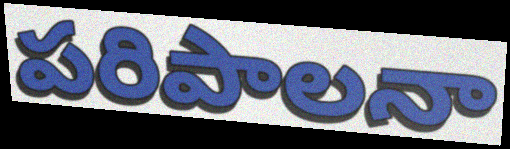
పరిపాలనా